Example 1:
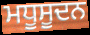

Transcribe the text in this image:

ਮਧੂਸੂਦਨ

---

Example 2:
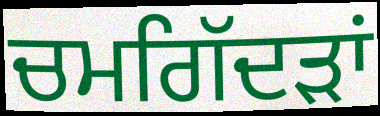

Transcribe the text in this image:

ਚਮਗਿੱਦੜਾਂ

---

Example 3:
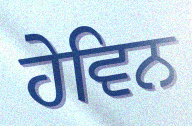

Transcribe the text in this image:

ਹੇਵਿਨ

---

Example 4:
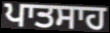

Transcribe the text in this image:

ਪਾਤਸਾਹ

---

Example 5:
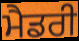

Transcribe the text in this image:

ਮੈਡਰੀ